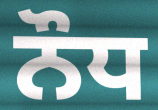
ਨੌਧ